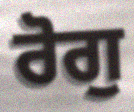
ਰੋਗੁ